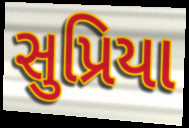
સુપ્રિયા